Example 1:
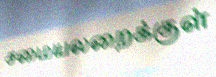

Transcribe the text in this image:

சமையலறைக்குள்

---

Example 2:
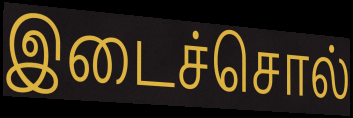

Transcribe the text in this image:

இடைச்சொல்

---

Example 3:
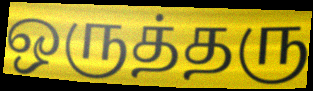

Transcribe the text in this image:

ஒருத்தரு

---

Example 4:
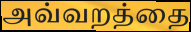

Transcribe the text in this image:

அவ்வறத்தை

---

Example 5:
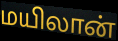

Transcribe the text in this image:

மயிலான்